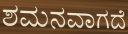
ಶಮನವಾಗದೆ